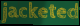
jacketed